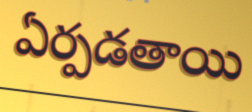
ఏర్పడతాయి